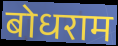
बोधराम